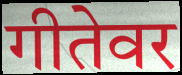
गीतेवर